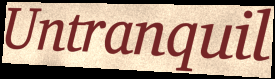
Untranquil